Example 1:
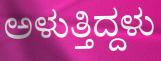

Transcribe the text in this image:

ಅಳುತ್ತಿದ್ದಳು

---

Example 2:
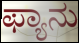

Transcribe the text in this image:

ಫ್ಯಾನು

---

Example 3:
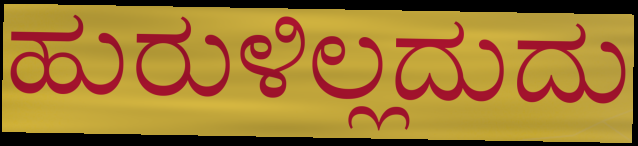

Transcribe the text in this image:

ಹುರುಳಿಲ್ಲದುದು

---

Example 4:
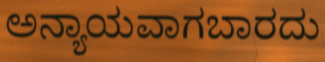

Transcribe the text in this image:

ಅನ್ಯಾಯವಾಗಬಾರದು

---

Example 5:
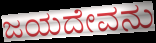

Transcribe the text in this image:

ಜಯದೇವನು